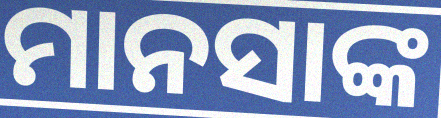
ମାନସାଙ୍କ